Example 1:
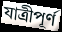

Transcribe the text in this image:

যাত্রীপূর্ণ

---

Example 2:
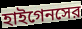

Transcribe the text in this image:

হাইগেনসের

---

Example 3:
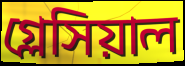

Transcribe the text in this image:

গ্লেসিয়াল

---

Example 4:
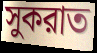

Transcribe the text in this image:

সুকরাত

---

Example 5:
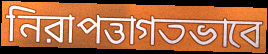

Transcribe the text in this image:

নিরাপত্তাগতভাবে